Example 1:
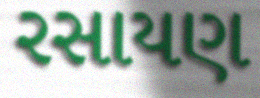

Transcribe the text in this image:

રસાયણ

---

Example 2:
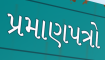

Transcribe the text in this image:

પ્રમાણપત્રો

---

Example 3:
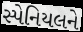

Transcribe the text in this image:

સ્પેનિયલને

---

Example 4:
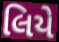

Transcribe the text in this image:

લિયે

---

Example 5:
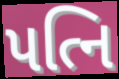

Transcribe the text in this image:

પત્નિ